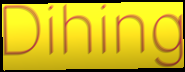
Dihing